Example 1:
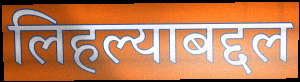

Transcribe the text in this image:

लिहल्याबद्दल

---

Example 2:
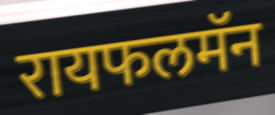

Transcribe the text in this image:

रायफलमॅन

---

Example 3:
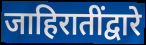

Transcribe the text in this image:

जाहिरातींद्वारे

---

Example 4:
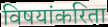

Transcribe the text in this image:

विषयांकरिता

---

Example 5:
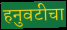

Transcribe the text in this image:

हनुवटीचा